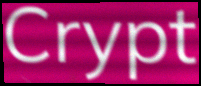
Crypt